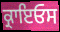
ਕ੍ਰਾਇਓਸ